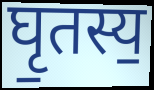
घृ॒तस्य॒